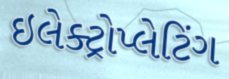
ઇલેક્ટ્રોપ્લેટિંગ